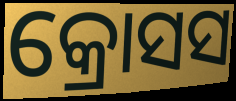
କ୍ରୋସସ